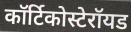
कॉर्टिकोस्टेरॉयड